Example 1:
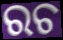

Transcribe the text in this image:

ରଚ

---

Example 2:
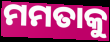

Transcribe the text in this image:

ମମତାକୁ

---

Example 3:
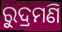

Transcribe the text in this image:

ରୁଦ୍ରମଣି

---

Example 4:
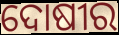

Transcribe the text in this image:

ଦୋଷୀର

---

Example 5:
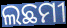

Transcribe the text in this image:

ଲଛମୀ